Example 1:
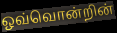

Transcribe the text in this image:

ஒவ்வொன்றின்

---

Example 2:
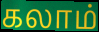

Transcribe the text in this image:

கலாம்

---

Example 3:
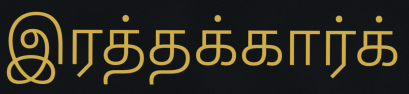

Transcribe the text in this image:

இரத்தக்கார்க்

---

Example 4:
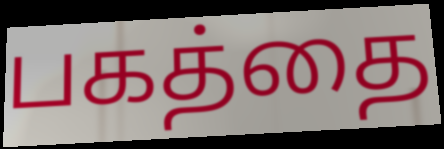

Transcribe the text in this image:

பகத்தை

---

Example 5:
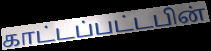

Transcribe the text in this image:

காட்டப்பட்டபின்